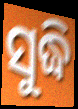
ସୁଦ୍ଧି